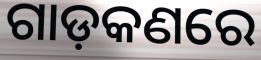
ଗାଡ଼କଣରେ